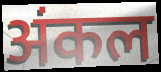
अंकल